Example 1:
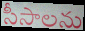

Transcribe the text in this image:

సీసాలను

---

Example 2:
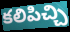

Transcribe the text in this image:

కలిపిచ్చి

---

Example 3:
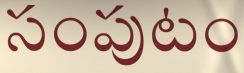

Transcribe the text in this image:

సంపుటం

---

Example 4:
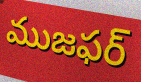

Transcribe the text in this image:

ముజఫర్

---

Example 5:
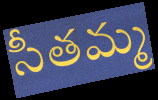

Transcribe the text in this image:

సీతమ్మ